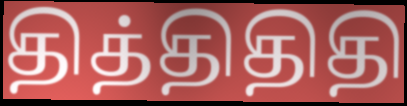
தித்திதிதி